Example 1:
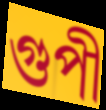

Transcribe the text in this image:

গুপী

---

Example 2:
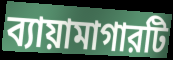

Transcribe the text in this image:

ব্যায়ামাগারটি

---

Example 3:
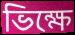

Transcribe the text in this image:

ভিক্ষে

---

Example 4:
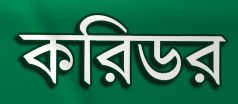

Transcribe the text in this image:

করিডর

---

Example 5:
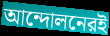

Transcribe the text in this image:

আন্দোলনেরই